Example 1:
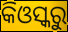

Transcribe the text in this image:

କିଓସ୍କରୁ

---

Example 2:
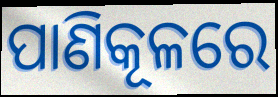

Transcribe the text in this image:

ପାଣିକୂଳରେ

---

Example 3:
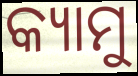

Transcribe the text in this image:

କ୍ୟାମୁ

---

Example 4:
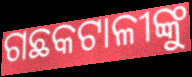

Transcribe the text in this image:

ଗଛକଟାଳୀଙ୍କୁ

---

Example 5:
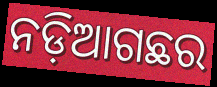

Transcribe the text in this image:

ନଡ଼ିଆଗଛର